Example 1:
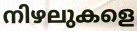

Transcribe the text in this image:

നിഴലുകളെ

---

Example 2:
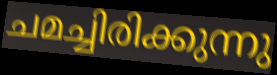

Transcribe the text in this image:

ചമച്ചിരിക്കുന്നു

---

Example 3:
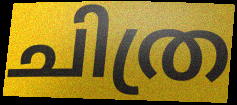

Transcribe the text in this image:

ചിത്ര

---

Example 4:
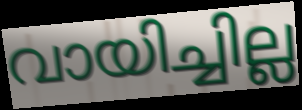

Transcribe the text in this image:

വായിച്ചില്ല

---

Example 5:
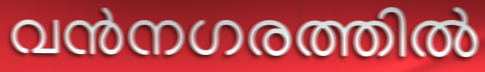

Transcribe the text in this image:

വൻനഗരത്തിൽ